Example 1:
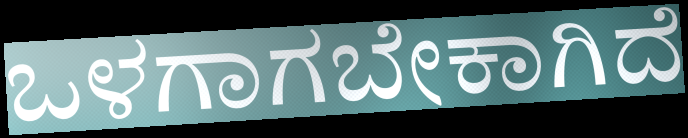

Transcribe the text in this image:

ಒಳಗಾಗಬೇಕಾಗಿದೆ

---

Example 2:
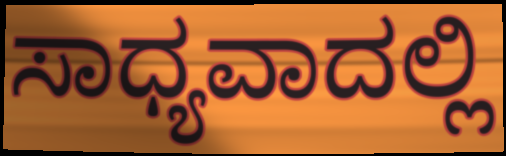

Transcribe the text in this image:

ಸಾಧ್ಯವಾದಲ್ಲಿ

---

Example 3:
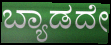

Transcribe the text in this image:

ಬ್ಯಾಡದೇ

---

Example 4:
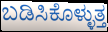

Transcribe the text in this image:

ಬಡಿಸಿಕೊಳ್ಳುತ್ತ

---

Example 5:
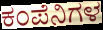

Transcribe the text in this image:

ಕಂಪೆನಿಗಳ